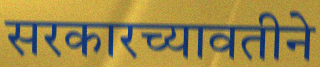
सरकारच्यावतीने